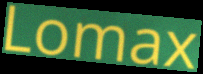
Lomax